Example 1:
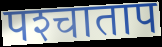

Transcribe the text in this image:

पश्चाताप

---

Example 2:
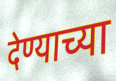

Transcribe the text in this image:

देण्याच्या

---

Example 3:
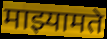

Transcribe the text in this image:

माझ्यामते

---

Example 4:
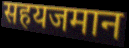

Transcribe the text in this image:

सहयजमान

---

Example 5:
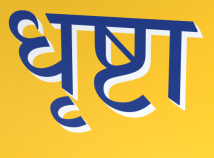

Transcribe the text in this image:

धृष्टा